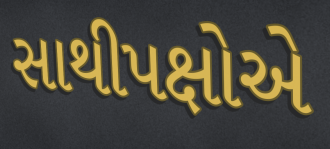
સાથીપક્ષોએ